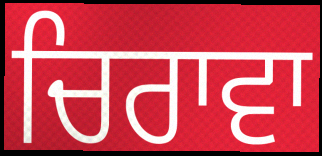
ਚਿਰਾਵਾ